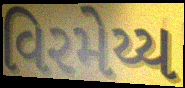
વિરમેય્ય